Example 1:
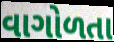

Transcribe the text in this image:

વાગોળતા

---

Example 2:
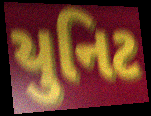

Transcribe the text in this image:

યુનિટ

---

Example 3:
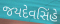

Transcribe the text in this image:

જયદેવસિંહે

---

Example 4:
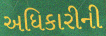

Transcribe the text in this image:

અધિકારીની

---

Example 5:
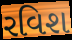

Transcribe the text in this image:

રવિશ